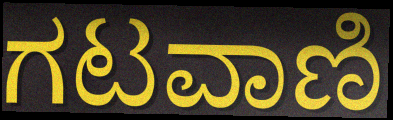
ಗಟವಾಣಿ